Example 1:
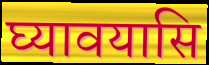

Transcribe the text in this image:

घ्यावयासि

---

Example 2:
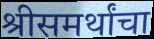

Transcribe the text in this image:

श्रीसमर्थांचा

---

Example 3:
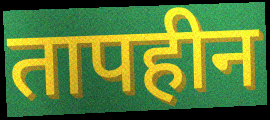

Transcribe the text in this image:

तापहीन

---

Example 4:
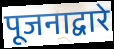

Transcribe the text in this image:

पूजनाद्वारे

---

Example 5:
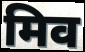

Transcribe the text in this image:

मिव